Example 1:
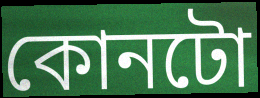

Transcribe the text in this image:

কোনটো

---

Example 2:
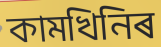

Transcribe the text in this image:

কামখিনিৰ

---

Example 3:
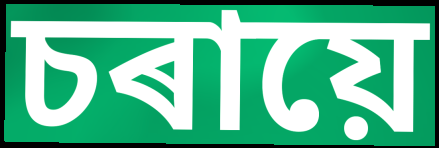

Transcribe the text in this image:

চৰায়ে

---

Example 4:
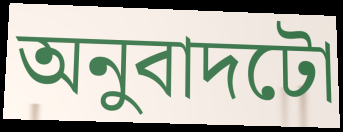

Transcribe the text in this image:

অনুবাদটো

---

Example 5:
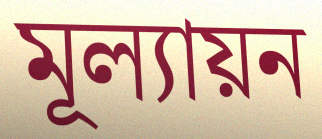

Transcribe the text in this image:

মূল্যায়ন